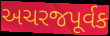
અચરજપૂર્વક